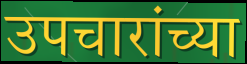
उपचारांच्या